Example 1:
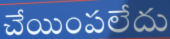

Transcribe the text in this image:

చేయింపలేదు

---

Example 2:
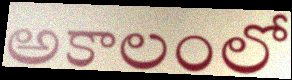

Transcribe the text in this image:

అకాలంలో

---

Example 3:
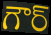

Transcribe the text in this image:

గౌర్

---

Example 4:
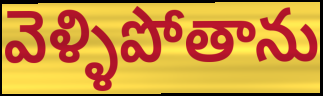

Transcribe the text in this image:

వెళ్ళిపోతాను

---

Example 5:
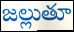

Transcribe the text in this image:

జల్లుతూ